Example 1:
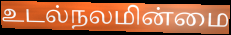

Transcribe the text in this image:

உடல்நலமின்மை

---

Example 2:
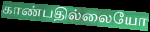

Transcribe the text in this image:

காண்பதில்லையோ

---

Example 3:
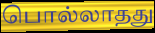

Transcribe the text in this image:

பொல்லாதது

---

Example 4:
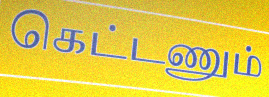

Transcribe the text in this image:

கெட்டணும்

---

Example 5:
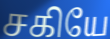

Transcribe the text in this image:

சகியே